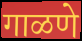
गाळणे